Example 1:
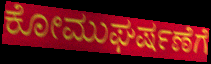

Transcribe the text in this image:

ಕೋಮುಘರ್ಷಣೆಗೆ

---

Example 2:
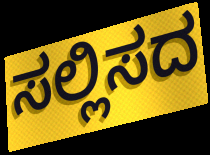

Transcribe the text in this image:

ಸಲ್ಲಿಸದ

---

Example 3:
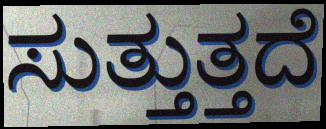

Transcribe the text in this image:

ಸುತ್ತುತ್ತದೆ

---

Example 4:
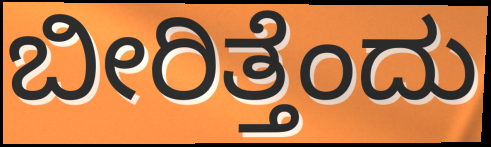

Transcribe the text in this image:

ಬೀರಿತ್ತೆಂದು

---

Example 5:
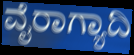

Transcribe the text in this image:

ವೈರಾಗ್ಯಾದಿ